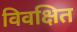
विवक्षित